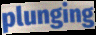
plunging